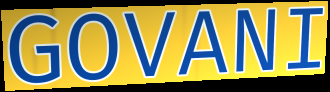
GOVANI